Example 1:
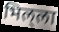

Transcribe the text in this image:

भिल्ला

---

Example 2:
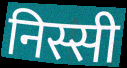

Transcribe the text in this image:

निस्सी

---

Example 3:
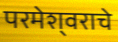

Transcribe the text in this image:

परमेश्वराचे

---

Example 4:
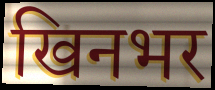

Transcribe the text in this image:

खिनभर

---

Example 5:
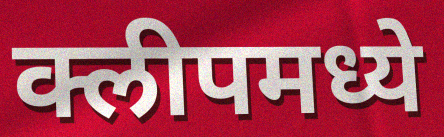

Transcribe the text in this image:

क्लीपमध्ये